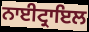
ਨਾਈਟ੍ਰਾਇਲ